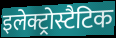
इलेक्ट्रोस्टैटिक